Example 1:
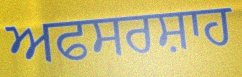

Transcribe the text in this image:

ਅਫਸਰਸ਼ਾਹ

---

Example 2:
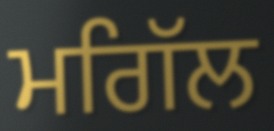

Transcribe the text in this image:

ਮਗਿੱਲ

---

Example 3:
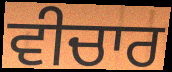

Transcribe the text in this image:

ਵੀਚਾਰ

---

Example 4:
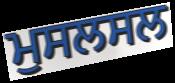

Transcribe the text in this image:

ਮੁਸਲਸਲ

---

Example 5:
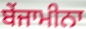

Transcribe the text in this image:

ਬੇਂਜਾਮੀਨਾ